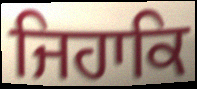
ਜਿਹਾਕਿ